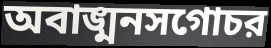
অবাঙ্মনসগোচর